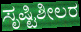
ಸೃಷ್ಟಿಶೀಲರ